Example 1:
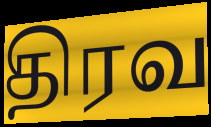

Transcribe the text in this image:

திரவ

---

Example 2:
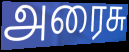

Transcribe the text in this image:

அரைசு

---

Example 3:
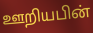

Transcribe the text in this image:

ஊறியபின்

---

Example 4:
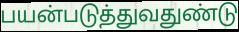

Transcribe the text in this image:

பயன்படுத்துவதுண்டு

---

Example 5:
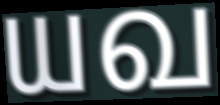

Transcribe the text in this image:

யவ